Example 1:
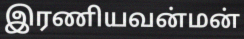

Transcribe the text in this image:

இரணியவன்மன்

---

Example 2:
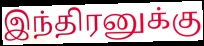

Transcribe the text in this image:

இந்திரனுக்கு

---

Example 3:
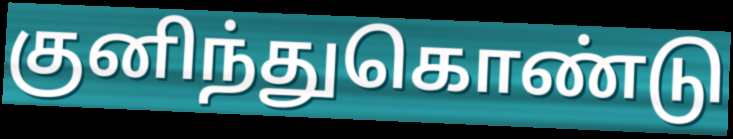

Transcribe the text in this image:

குனிந்துகொண்டு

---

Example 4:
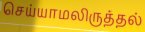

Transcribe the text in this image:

செய்யாமலிருத்தல்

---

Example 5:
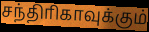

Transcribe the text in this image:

சந்திரிகாவுக்கும்